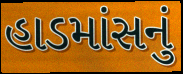
હાડમાંસનું